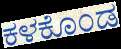
ಕಳಕೊಂಡ